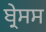
ਬ੍ਰੇਸਸ